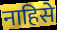
नाहिसे